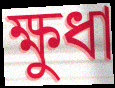
ক্ষুধা